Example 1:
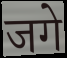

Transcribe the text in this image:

जगे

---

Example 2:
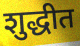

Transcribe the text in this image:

शुद्धीत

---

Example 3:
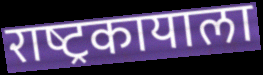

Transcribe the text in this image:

राष्ट्रकायाला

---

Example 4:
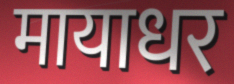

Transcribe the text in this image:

मायाधर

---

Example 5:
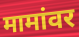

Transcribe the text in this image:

मामांवर